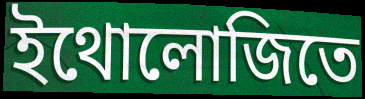
ইথোলোজিতে